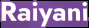
Raiyani